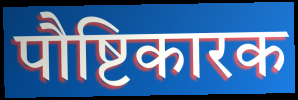
पौष्टिकारक